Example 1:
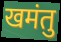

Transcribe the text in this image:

खमंतु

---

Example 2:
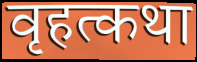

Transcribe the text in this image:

वृहत्कथा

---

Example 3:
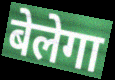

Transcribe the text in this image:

बेलेगा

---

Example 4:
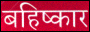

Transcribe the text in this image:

बहिष्कार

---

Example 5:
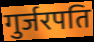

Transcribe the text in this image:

गुर्जरपति